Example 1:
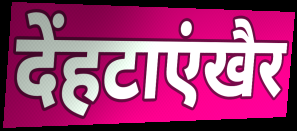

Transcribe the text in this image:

देंहटाएंखैर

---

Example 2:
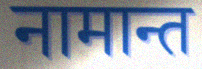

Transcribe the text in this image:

नामान्त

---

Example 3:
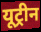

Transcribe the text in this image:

यूट्रीन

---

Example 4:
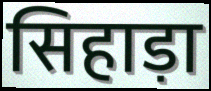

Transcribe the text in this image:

सिहाड़ा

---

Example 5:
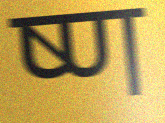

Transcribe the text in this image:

ष्ण